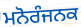
ਮਨੋਰੰਜਨਕ